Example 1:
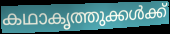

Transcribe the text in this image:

കഥാകൃത്തുക്കൾക്ക്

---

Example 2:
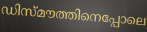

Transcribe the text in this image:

ഡിസ്മൗത്തിനെപ്പോലെ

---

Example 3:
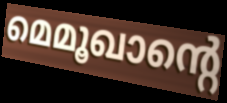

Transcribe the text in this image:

മെമൂഖാന്റെ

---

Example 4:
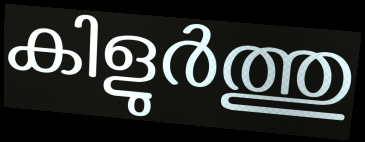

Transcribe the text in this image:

കിളുർത്തു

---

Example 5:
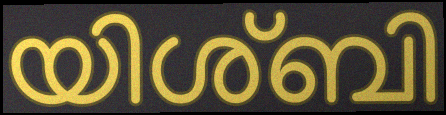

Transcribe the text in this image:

യിശ്ബി